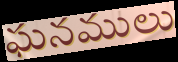
ఘనములు